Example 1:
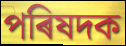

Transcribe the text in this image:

পৰিষদক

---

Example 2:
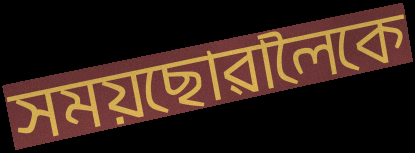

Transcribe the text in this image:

সময়ছোৱালৈকে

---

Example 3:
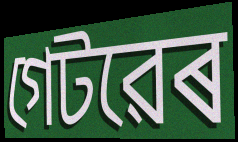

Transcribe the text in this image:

গেটৱেৰ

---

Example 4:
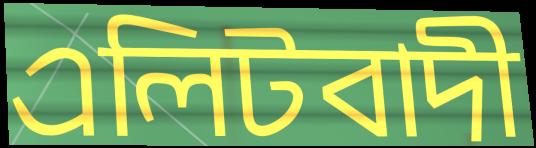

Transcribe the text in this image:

এলিটবাদী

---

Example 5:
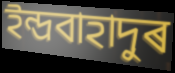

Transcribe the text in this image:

ইন্দ্ৰবাহাদুৰ